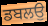
ਡਬਲਉ